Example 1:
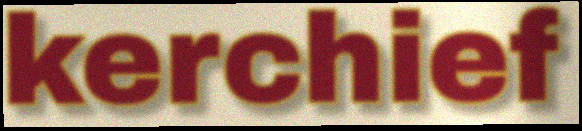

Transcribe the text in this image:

kerchief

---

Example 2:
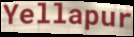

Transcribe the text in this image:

Yellapur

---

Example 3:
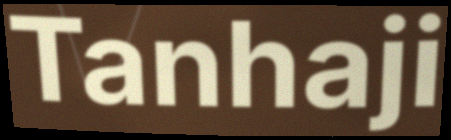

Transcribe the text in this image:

Tanhaji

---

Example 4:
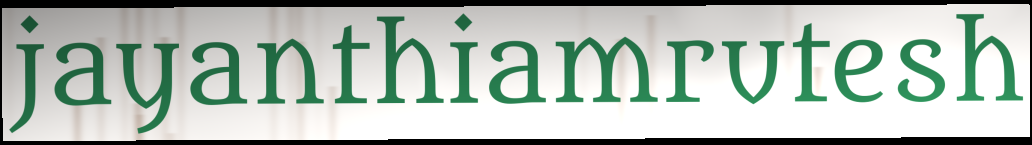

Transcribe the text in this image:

jayanthiamrutesh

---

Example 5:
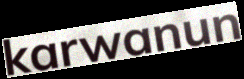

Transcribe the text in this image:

karwanun